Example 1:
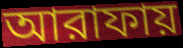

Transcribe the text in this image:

আরাফায়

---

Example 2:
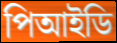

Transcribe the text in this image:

পিআইডি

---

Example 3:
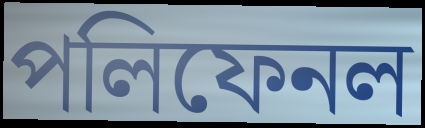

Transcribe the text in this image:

পলিফেনল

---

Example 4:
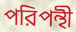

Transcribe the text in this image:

পরিপন্থী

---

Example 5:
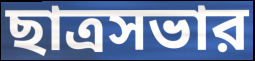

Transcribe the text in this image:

ছাত্রসভার